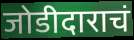
जोडीदाराचं